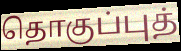
தொகுப்புத்